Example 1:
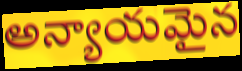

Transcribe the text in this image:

అన్యాయమైన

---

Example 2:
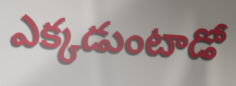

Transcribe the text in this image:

ఎక్కడుంటాడో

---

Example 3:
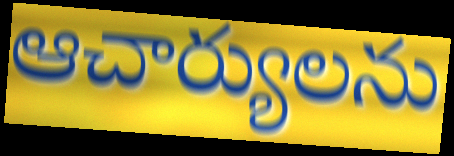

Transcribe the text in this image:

ఆచార్యులను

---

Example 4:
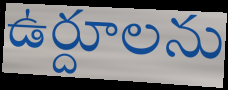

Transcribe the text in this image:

ఉర్దూలను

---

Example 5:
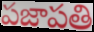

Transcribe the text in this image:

పజాపతి